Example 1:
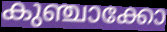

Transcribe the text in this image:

കുഞ്ചാക്കോ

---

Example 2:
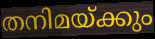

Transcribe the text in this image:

തനിമയ്ക്കും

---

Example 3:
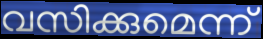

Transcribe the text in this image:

വസിക്കുമെന്ന്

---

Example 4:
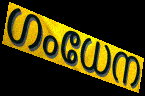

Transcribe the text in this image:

ഗംധേന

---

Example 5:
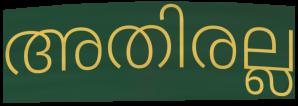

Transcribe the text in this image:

അതിരല്ല